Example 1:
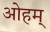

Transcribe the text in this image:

ओहम्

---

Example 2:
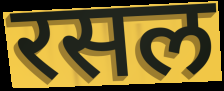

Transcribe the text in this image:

रसल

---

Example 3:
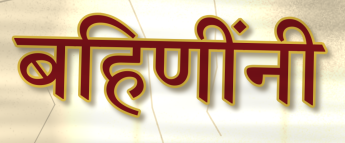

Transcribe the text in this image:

बहिणींनी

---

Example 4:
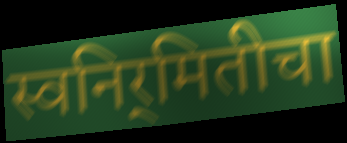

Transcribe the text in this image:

स्वनिर्मितीचा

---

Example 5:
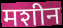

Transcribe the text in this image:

मशीन